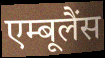
एम्बूलैंस